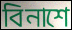
বিনাশে